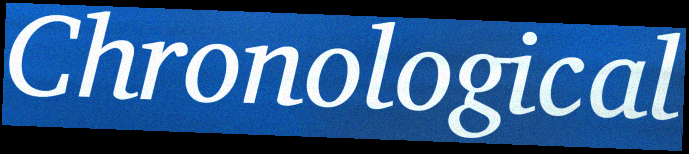
Chronological